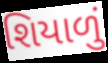
શિયાળું